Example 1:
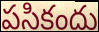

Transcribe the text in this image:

పసికందు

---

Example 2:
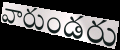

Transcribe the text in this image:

వారుండరు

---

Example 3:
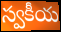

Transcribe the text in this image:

స్వకీయ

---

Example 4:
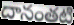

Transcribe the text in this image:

దానంతటి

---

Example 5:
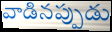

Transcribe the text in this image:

వాడినప్పుడు